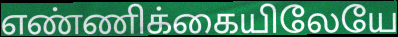
எண்ணிக்கையிலேயே